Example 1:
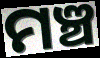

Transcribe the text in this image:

ମଞ୍ଚ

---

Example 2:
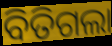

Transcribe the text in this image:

ବିତିଗଲା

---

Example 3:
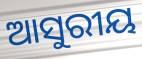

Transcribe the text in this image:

ଆସୁରୀୟ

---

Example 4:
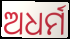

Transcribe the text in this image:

ଅଧର୍ମ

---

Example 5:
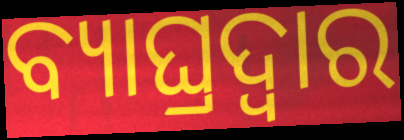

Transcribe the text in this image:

ବ୍ୟାଘ୍ରଦ୍ଵାର